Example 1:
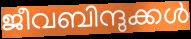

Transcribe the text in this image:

ജീവബിന്ദുക്കൾ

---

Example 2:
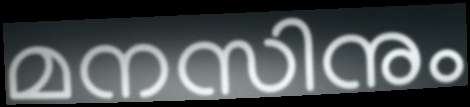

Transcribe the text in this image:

മനസിനും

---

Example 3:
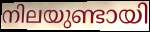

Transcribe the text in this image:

നിലയുണ്ടായി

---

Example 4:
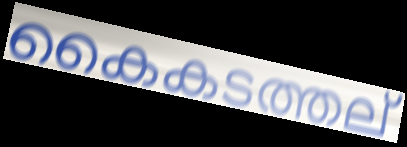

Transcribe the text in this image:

കൈകടത്തല്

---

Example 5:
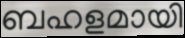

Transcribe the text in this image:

ബഹളമായി